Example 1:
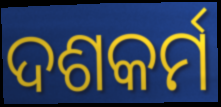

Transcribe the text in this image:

ଦଶକର୍ମ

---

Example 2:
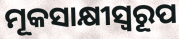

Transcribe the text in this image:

ମୂକସାକ୍ଷୀସ୍ୱରୂପ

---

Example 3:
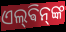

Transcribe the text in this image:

ଏଲ୍‌ଵିନ୍‌ଙ୍କ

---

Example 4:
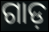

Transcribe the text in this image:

ଗାଡ଼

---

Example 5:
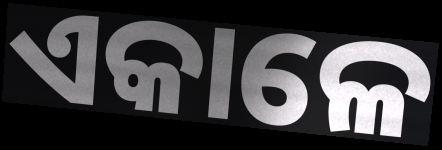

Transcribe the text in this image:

ଏକାଳେ